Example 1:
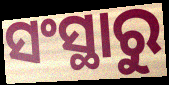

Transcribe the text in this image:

ସଂସ୍ଥାରୁ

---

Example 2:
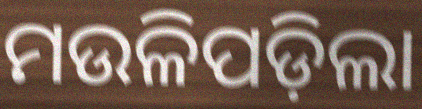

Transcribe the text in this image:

ମଉଳିପଡ଼ିଲା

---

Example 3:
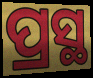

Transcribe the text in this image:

ପ୍ରସ୍ଥ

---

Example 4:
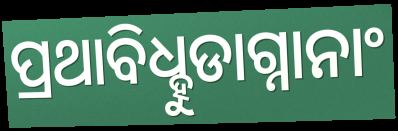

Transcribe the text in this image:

ପ୍ରଥାବିଧ୍ହୁଡାଗ୍ନାନାଂ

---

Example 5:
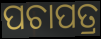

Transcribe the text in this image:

ପଚାପତ୍ର